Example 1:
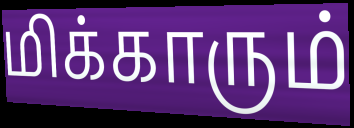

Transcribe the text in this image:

மிக்காரும்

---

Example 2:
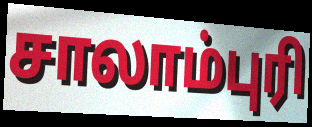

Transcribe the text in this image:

சாலாம்புரி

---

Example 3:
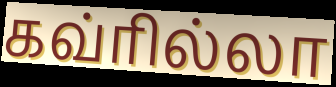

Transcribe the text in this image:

கவ்ரில்லா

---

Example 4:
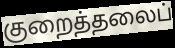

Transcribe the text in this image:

குறைத்தலைப்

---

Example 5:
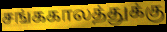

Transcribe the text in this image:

சங்ககாலத்துக்கு